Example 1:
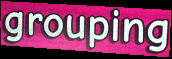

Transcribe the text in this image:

grouping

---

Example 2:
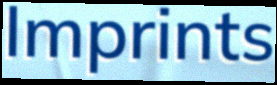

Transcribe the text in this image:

Imprints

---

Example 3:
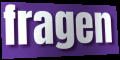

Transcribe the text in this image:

fragen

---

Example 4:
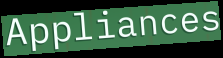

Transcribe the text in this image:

Appliances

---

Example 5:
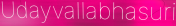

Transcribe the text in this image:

Udayvallabhasuri